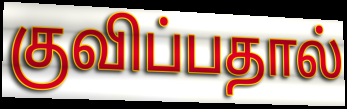
குவிப்பதால்